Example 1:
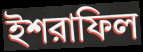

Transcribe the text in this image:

ইশরাফিল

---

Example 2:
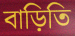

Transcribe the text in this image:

বাড়িতি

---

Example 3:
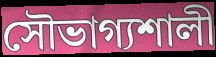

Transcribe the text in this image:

সৌভাগ্যশালী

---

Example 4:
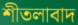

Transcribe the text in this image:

শীতলাবাদ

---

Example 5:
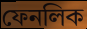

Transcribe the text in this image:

ফেনলিক